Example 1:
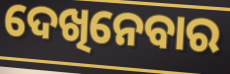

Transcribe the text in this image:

ଦେଖିନେବାର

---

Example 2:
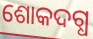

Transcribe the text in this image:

ଶୋକଦଗ୍ଧ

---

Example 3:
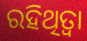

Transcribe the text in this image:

ରହିଥିତ୍ବା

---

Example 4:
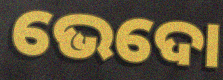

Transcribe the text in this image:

ଭେଦୋ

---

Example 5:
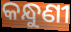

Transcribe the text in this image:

କନ୍ଧୁଣୀ